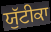
ਯੁੱਟੀਕਾ